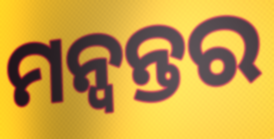
ମନ୍ବନ୍ତର